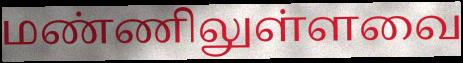
மண்ணிலுள்ளவை